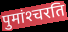
पुमांश्चरति